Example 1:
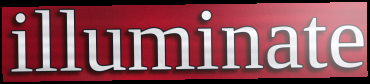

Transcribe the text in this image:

illuminate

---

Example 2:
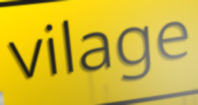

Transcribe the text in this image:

vilage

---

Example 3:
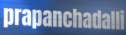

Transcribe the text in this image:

prapanchadalli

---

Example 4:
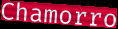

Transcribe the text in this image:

Chamorro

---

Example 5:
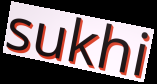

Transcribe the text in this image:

sukhi